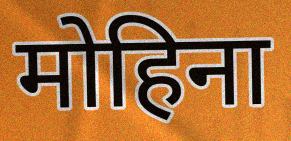
मोहिना